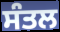
ਸੰਤਲ